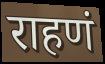
राहणं